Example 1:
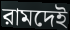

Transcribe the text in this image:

রামদেই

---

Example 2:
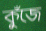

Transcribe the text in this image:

কুঁজে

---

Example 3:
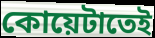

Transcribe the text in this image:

কোয়েটাতেই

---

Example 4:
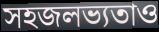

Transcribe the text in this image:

সহজলভ্যতাও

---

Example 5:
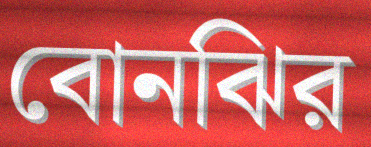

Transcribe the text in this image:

বোনঝির